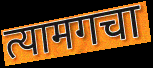
त्यामगचा